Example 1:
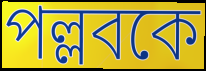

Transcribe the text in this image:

পল্লবকে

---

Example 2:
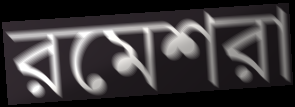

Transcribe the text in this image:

রমেশরা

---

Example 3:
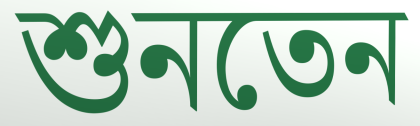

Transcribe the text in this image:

শুনতেন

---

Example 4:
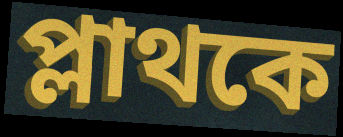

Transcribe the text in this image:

প্লাথকে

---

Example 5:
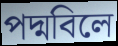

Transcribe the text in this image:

পদ্মবিলে